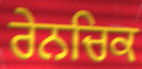
ਰੇਨਚਿਕ